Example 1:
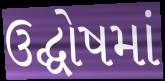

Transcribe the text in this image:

ઉદ્ઘોષમાં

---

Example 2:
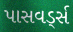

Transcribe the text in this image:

પાસવર્ડ્સ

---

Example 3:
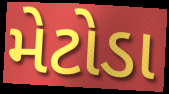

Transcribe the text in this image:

મેટોડા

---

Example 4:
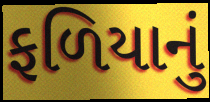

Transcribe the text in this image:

ફળિયાનું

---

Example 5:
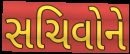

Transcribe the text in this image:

સચિવોને